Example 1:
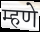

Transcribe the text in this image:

म्हणे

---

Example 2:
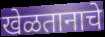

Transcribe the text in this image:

खेळतानाचे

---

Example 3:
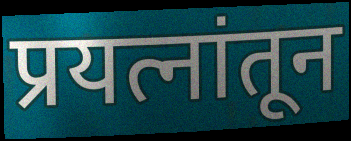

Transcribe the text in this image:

प्रयत्नांतून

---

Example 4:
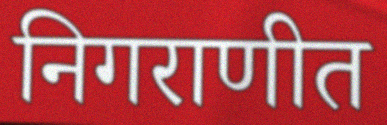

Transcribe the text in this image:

निगराणीत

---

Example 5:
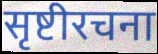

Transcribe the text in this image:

सृष्टीरचना